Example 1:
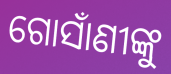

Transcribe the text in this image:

ଗୋସାଁଣୀଙ୍କୁ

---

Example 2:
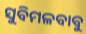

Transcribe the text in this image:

ସୁବିମଳବାବୁ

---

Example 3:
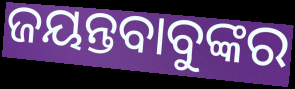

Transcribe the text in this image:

ଜୟନ୍ତବାବୁଙ୍କର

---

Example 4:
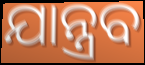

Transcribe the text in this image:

ଯାନ୍ତ୍ରବ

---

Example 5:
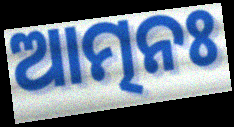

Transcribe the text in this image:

ଆତ୍ମନଃ